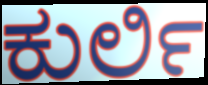
ಕುರ್ಲಿ